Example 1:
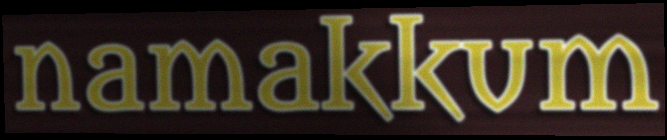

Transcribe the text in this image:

namakkum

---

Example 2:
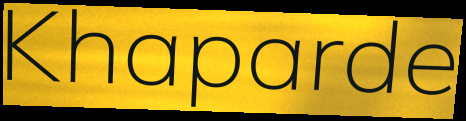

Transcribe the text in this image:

Khaparde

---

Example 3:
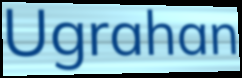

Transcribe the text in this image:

Ugrahan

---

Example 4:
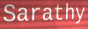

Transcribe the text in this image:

Sarathy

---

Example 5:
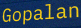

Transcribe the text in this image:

Gopalan